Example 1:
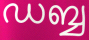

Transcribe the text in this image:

ഡബ്ബ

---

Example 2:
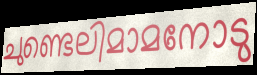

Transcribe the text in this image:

ചുണ്ടെലിമാമനോടു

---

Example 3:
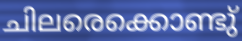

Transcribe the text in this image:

ചിലരെക്കൊണ്ടു്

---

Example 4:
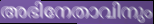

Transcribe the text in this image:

അഭിനേതാവിനും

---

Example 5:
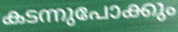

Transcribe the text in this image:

കടന്നുപോക്കും